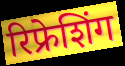
रिफ्रेशिंग